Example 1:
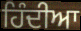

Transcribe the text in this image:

ਹਿੰਦੀਆ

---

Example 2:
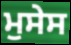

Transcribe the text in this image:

ਮੁਸੇਸ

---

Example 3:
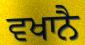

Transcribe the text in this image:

ਵਖਾਨੈ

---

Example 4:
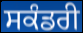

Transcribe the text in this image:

ਸਕੰਡਰੀ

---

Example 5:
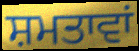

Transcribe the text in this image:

ਸ਼ਮਤਾਵਾਂ